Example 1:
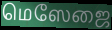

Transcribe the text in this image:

மெஸேஜை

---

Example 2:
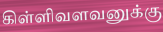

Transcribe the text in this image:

கிள்ளிவளவனுக்கு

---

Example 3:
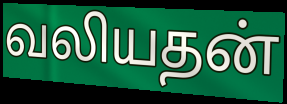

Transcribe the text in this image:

வலியதன்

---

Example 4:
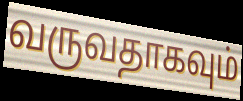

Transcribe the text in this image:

வருவதாகவும்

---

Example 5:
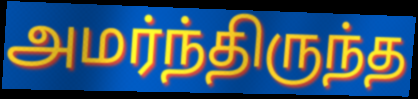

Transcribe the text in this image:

அமர்ந்திருந்த